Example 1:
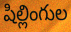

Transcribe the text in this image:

షిల్లింగుల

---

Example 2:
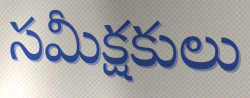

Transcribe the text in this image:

సమీక్షకులు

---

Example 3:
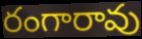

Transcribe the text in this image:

రంగారావు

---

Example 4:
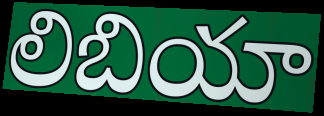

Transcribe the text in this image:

లిబియా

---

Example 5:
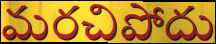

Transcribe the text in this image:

మరచిపోదు